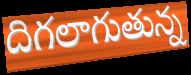
దిగలాగుతున్న